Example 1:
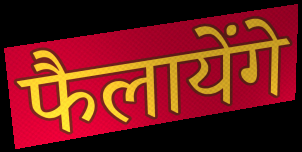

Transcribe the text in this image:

फैलायेंगे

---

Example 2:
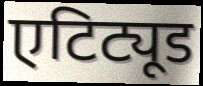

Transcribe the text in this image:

एटिट्यूड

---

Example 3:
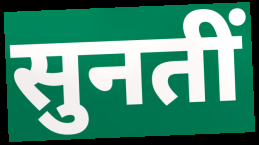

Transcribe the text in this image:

सुनतीं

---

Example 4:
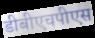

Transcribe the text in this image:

डीबीएचपीएस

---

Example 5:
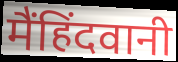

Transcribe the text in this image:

मैंहिंदवानी